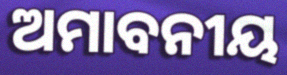
ଅମାବନୀୟ